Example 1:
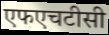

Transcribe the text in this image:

एफएचटीसी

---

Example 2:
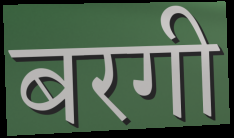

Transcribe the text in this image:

बरगी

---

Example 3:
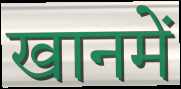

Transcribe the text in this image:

खानमें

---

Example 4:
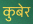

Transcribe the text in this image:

कुबेर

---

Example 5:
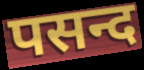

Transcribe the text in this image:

पसन्द